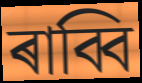
ৰাব্বি